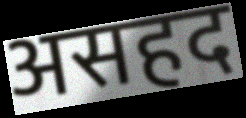
असहद